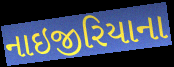
નાઇજીરિયાના